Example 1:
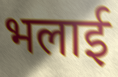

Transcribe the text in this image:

भलाई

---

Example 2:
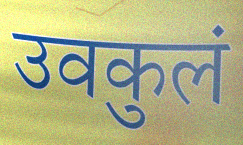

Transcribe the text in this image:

उवकुलं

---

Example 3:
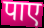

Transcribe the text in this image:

पाए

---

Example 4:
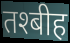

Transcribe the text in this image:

तश्बीह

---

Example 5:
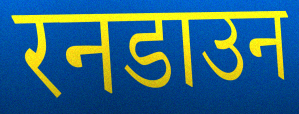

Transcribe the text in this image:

रनडाउन